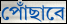
পোঁছাবে